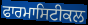
ਫਾਰਮਾਸਿਟੀਕਲ